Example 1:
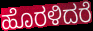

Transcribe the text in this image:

ಹೊರಳಿದರೆ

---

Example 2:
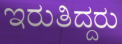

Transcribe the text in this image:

ಇರುತಿದ್ದರು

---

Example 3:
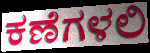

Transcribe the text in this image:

ಕಣೆಗಳಲಿ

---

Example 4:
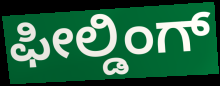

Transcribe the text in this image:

ಫೀಲ್ಡಿಂಗ್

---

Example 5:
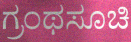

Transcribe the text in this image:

ಗ್ರಂಥಸೂಚಿ